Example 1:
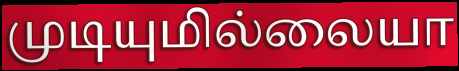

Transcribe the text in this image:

முடியுமில்லையா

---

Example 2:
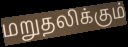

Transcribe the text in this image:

மறுதலிக்கும்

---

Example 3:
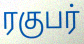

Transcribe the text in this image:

ரகுபர்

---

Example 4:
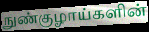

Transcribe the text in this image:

நுண்குழாய்களின்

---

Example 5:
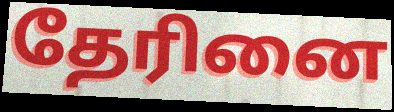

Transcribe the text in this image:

தேரினை